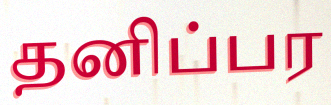
தனிப்பர